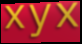
xyx